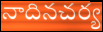
నాదినచర్య